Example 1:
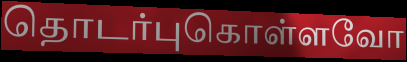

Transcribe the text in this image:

தொடர்புகொள்ளவோ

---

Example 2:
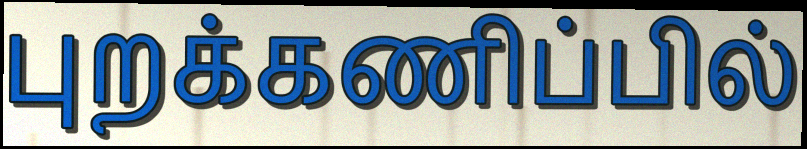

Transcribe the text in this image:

புறக்கணிப்பில்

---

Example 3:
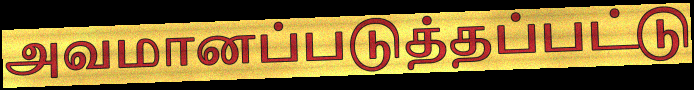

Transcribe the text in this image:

அவமானப்படுத்தப்பட்டு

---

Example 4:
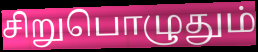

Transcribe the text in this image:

சிறுபொழுதும்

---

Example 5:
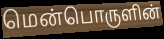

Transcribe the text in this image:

மென்பொருளின்